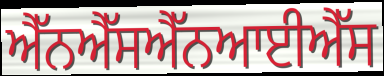
ਐੱਨਐੱਸਐੱਨਆਈਐੱਸ